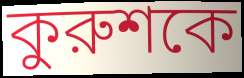
কুরুশকে